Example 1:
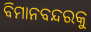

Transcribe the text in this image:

ବିମାନବନ୍ଦରକୁ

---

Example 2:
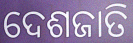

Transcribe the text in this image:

ଦେଶଜାତି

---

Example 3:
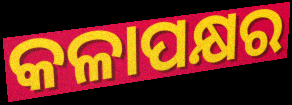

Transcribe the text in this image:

କଳାପକ୍ଷର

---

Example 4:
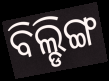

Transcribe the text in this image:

ବିଲ୍ଡିଙ୍ଗ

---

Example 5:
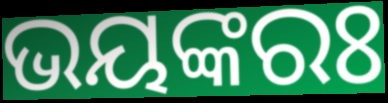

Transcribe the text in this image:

ଭୟଙ୍କରଃ